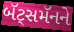
બૅટ્સમૅનને